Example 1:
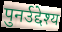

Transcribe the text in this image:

पुनर्उद्देश्य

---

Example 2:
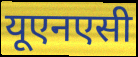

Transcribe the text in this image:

यूएनएसी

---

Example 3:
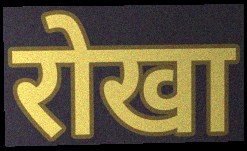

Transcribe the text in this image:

रोखा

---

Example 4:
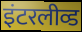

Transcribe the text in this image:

इंटरलीव्ड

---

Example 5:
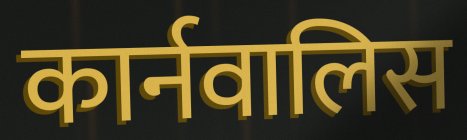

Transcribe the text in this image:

कार्नवालिस